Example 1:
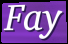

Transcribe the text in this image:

Fay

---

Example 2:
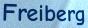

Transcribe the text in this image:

Freiberg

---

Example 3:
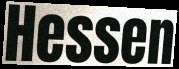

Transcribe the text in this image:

Hessen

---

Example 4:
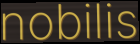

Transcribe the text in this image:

nobilis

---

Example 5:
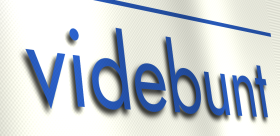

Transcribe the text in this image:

videbunt